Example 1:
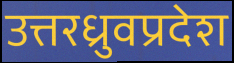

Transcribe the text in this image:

उत्तरध्रुवप्रदेश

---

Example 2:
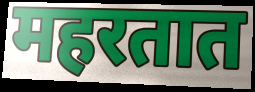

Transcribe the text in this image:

महरतात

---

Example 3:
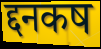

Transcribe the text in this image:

द्दनकष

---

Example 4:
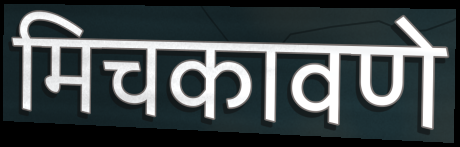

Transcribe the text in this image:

मिचकावणे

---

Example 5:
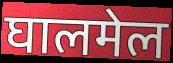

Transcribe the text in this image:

घालमेल